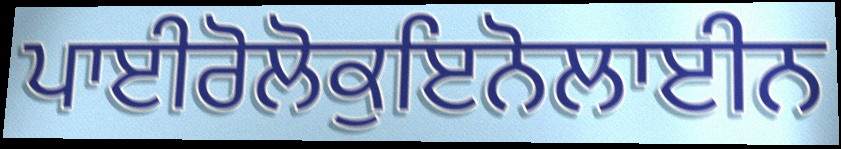
ਪਾਈਰੋਲੋਕੁਇਨੋਲਾਈਨ